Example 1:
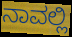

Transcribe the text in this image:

ನಾವಲ್ಲಿ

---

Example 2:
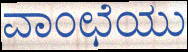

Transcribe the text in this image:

ವಾಂಛೆಯು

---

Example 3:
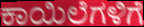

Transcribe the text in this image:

ಕಾಯಿಲೆಗಳಿಗೆ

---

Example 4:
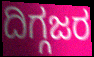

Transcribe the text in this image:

ದಿಗ್ಗಜರ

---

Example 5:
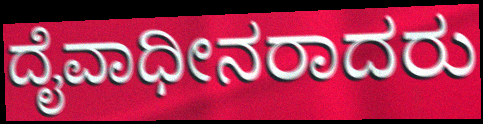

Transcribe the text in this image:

ದೈವಾಧೀನರಾದರು